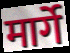
मार्गे